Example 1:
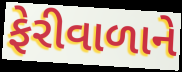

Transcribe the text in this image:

ફેરીવાળાને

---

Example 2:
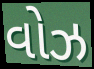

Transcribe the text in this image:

વોઝ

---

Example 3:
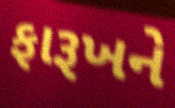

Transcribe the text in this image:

ફારૂખને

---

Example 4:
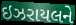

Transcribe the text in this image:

ઇઝરાયલને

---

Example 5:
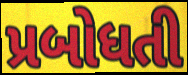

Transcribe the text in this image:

પ્રબોધતી